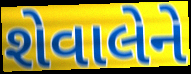
શેવાલેને